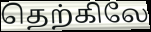
தெற்கிலே